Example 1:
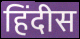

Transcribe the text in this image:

हिंदीस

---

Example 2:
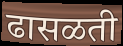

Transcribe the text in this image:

ढासळती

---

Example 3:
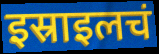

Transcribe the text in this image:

इस्राइलचं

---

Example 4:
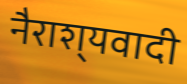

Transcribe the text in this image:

नैराश्यवादी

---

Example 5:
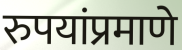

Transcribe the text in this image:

रुपयांप्रमाणे